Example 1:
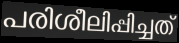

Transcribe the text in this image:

പരിശീലിപ്പിച്ചത്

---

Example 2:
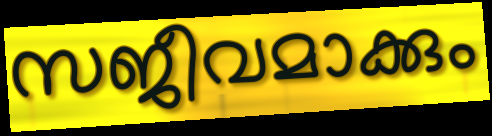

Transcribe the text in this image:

സജീവമാക്കും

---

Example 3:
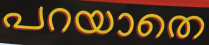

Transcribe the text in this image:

പറയാതെ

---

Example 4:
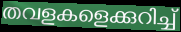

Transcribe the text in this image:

തവളകളെക്കുറിച്ച്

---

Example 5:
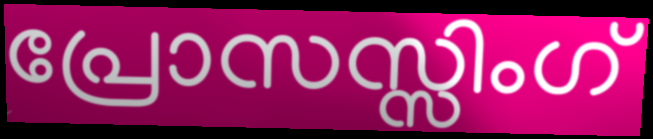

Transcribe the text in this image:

പ്രോസസ്സിംഗ്